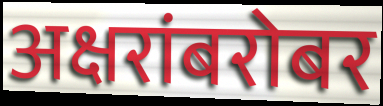
अक्षरांबरोबर